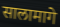
सालामागे